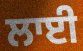
ਲਾਈ